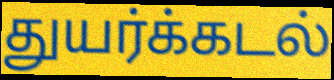
துயர்க்கடல்